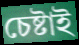
চেষ্টাই